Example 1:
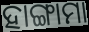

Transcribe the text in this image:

ହାଙ୍ଗାମା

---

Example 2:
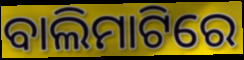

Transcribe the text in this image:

ବାଲିମାଟିରେ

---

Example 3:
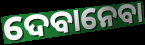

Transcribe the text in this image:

ଦେବାନେବା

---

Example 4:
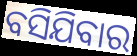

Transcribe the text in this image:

ବସିଯିବାର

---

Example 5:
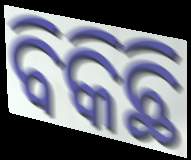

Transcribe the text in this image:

ବିକିଛି